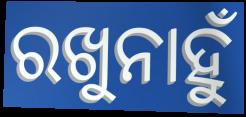
ରଖୁନାହୁଁ